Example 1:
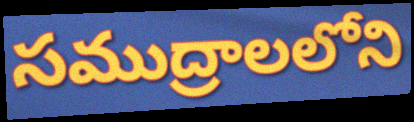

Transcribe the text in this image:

సముద్రాలలోని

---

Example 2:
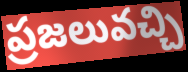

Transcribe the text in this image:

ప్రజలువచ్చి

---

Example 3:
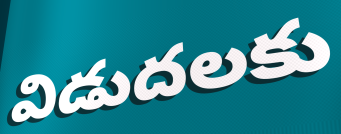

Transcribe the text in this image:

విడుదలకు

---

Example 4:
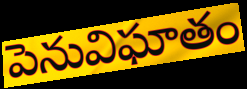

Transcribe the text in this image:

పెనువిఘాతం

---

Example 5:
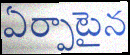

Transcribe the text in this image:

ఏర్పాటైన